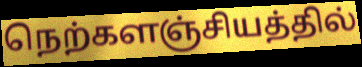
நெற்களஞ்சியத்தில்